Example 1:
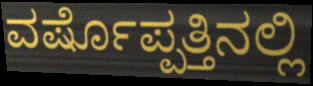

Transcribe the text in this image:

ವರ್ಷೊಪ್ಪತ್ತಿನಲ್ಲಿ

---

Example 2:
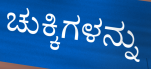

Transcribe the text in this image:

ಚುಕ್ಕಿಗಳನ್ನು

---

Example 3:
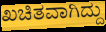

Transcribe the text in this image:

ಖಚಿತವಾಗಿದ್ದು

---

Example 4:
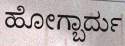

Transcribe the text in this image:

ಹೋಗ್ಬಾರ್ದು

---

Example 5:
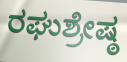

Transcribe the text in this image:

ರಘುಶ್ರೇಷ್ಠ